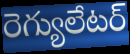
రెగ్యులేటర్